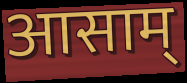
आसाम्